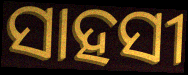
ସାହସୀ